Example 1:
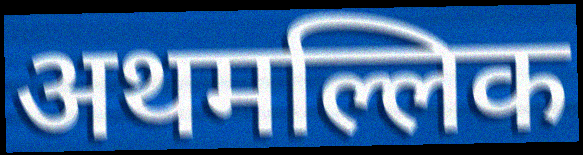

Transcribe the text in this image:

अथमल्लिक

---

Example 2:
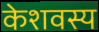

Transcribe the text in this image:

केशवस्य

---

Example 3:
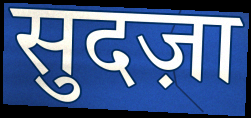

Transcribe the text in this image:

सुदज़ा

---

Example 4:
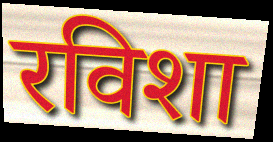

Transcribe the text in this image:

रविशा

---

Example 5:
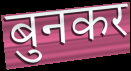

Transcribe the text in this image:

बुनकर